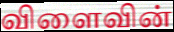
விளைவின்